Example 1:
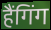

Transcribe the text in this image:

हैंगिंग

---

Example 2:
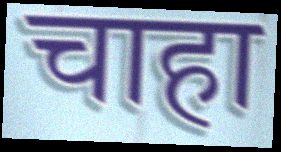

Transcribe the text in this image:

चाहा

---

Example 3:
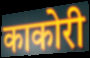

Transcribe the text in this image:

काकोरी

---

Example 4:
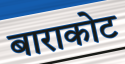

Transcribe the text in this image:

बाराकोट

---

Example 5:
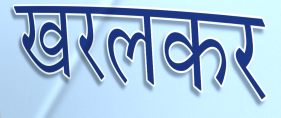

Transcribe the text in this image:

खरलकर